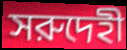
সরুদেহী